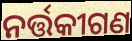
ନର୍ତ୍ତକୀଗଣ